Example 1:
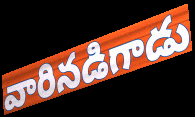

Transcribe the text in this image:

వారినడిగాడు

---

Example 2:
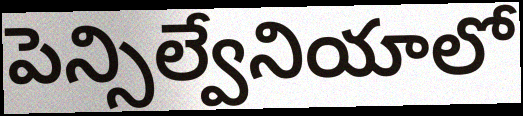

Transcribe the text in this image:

పెన్సిల్వేనియాలో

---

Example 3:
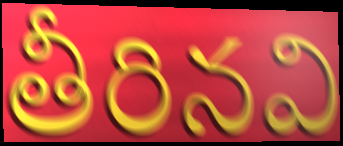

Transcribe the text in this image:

తీరినవి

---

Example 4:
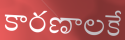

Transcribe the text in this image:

కారణాలకే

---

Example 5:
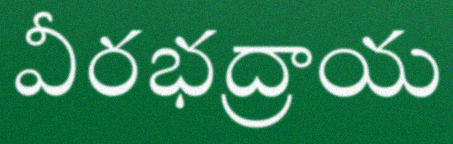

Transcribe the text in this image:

వీరభద్రాయ